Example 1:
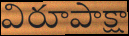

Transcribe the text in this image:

విరూపాక్షా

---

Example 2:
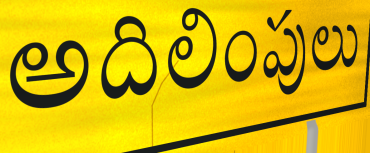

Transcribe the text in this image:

అదిలింపులు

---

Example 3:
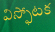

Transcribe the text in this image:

విస్ఫోటక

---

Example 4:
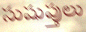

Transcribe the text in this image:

సుషుప్తులు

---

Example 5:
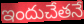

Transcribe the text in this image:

ఇందుచేతనే